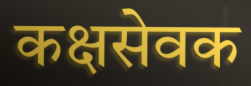
कक्षसेवक